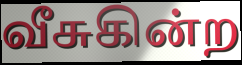
வீசுகின்ற